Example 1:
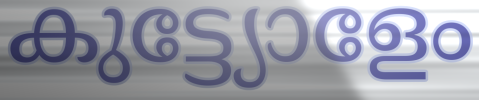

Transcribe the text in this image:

കുട്ട്യോളേം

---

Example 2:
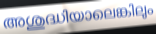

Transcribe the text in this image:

അശുദ്ധിയാലെങ്കിലും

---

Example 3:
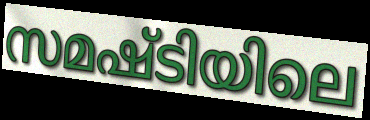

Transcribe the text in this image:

സമഷ്ടിയിലെ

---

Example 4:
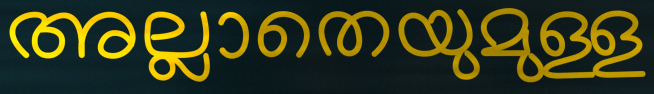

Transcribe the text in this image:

അല്ലാതെയുമുള്ള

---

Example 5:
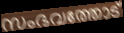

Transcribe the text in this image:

സംഭവത്തോട്